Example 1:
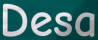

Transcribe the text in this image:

Desa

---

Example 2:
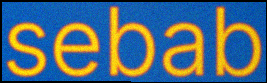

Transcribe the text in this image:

sebab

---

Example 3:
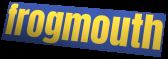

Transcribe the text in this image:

frogmouth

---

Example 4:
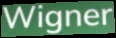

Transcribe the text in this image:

Wigner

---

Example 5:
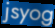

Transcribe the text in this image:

jsyog